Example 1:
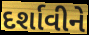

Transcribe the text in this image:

દર્શાવીને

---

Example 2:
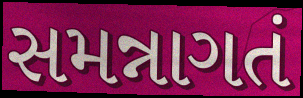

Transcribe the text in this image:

સમન્નાગતં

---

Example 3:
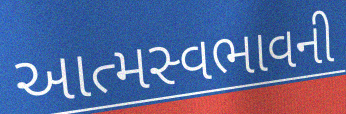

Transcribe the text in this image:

આત્મસ્વભાવની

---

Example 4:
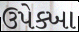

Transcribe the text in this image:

ઉપેક્ખા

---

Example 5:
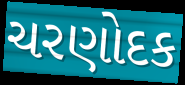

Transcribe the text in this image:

ચરણોદક